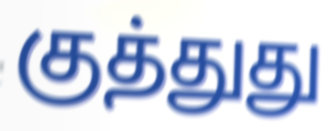
குத்துது